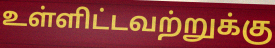
உள்ளிட்டவற்றுக்கு